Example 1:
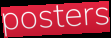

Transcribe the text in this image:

posters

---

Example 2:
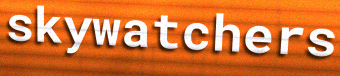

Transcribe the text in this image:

skywatchers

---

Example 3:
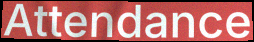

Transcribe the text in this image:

Attendance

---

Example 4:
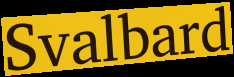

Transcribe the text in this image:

Svalbard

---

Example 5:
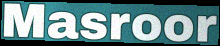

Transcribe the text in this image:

Masroor